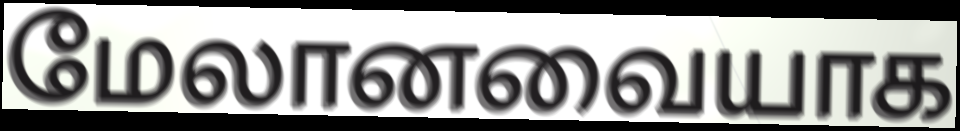
மேலானவையாக